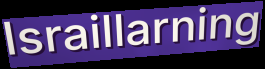
Israillarning